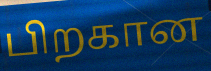
பிறகான